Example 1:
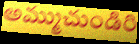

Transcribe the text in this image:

అమ్ముచుండిరి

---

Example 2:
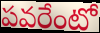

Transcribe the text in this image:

పవరేంటో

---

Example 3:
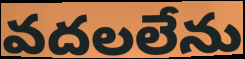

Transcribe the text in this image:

వదలలేను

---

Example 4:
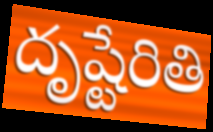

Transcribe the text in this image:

దృష్టేరితి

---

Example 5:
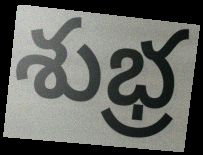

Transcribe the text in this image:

శుభ్ర